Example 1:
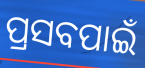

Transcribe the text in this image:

ପ୍ରସବପାଇଁ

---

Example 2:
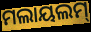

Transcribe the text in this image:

ମଲାୟଲମ୍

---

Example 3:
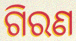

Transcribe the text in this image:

ଗିରଣ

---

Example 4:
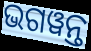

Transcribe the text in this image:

ଭଗୱନ୍ତ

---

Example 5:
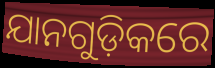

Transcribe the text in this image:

ଯାନଗୁଡ଼ିକରେ